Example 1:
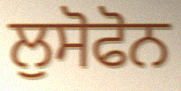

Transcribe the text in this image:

ਲੁਸੋਫੋਨ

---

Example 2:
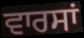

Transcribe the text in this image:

ਵਾਰਸਾਂ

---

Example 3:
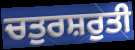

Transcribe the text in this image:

ਚਤੁਰਸ਼ਰੁਤੀ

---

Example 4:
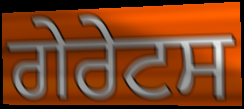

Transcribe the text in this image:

ਗੇਰੇਟਸ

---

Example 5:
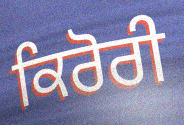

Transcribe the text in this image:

ਕਿਰੋਰੀ